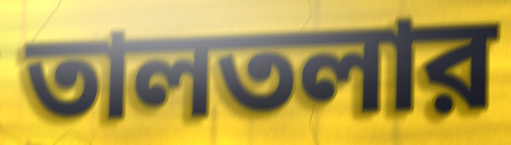
তালতলার